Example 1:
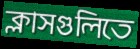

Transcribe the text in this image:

ক্লাসগুলিতে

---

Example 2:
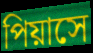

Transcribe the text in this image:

পিয়াসে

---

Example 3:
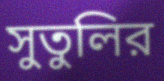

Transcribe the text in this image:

সুতুলির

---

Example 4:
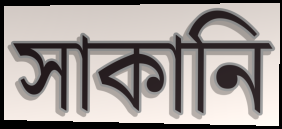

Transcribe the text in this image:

সাকানি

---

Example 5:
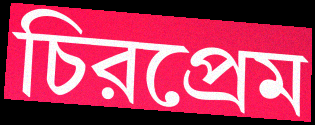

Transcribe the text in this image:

চিরপ্রেম